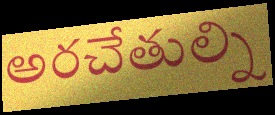
అరచేతుల్ని